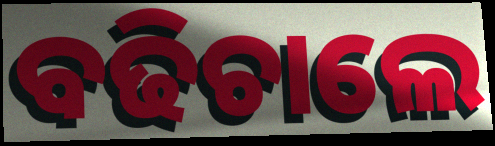
ବଢିଚାଲେ